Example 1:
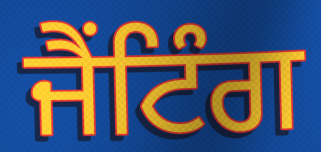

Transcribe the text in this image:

ਜੈਂਟਿੰਗ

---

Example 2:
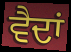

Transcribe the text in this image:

ਵੈਦਾਂ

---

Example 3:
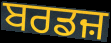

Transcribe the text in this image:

ਬਰਡਜ਼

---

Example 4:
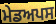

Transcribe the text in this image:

ਮੇਡਅਪਸ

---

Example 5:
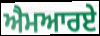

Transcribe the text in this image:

ਐਮਆਰਏ